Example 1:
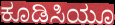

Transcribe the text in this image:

ಕೂಡಿಸಿಯೂ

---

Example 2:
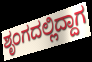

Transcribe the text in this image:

ಶೃಂಗದಲ್ಲಿದ್ದಾಗ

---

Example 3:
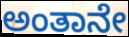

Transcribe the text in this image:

ಅಂತಾನೇ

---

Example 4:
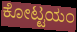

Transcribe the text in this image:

ಕೋಟ್ಟಯಂ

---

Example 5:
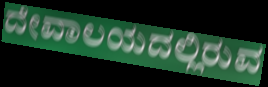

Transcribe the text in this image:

ದೇವಾಲಯದಲ್ಲಿರುವ